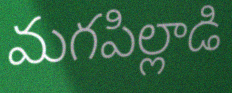
మగపిల్లాడి